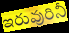
ఇరువురినీ